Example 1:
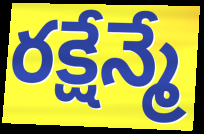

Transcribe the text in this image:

రక్షేన్మే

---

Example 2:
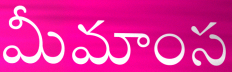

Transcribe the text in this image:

మీమాంస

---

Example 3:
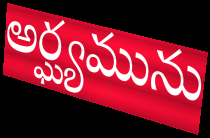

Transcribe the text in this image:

అర్ఘ్యమును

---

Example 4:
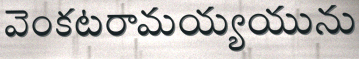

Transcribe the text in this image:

వెంకటరామయ్యయును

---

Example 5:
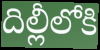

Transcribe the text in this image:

దిల్లీలోకి